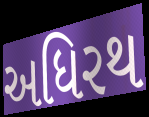
અધિરથ